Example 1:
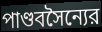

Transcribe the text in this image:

পাণ্ডবসৈন্যের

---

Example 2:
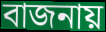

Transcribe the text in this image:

বাজনায়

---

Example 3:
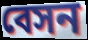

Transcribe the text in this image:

বেসন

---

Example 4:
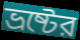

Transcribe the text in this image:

ভ্রষ্টের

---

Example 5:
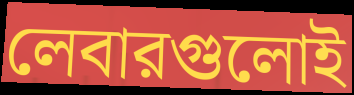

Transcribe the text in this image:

লেবারগুলোই